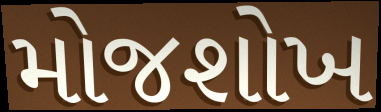
મોજશોખ